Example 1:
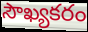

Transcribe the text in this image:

సౌఖ్యకరం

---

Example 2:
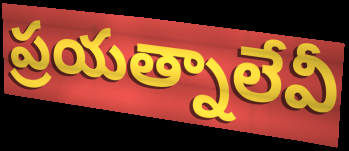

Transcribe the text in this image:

ప్రయత్నాలేవీ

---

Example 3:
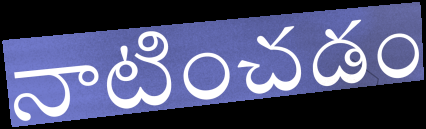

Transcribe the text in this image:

నాటించడం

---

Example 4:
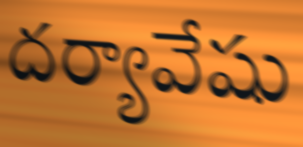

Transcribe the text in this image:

దర్యావేషు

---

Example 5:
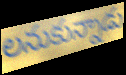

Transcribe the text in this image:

లనుకున్నాడు